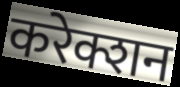
करेक्शन